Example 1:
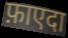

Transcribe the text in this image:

फ़ाएदा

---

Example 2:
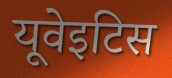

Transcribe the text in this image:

यूवेइटिस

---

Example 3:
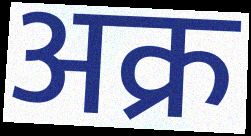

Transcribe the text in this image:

अक्र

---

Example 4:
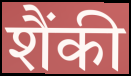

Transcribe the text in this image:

शैंकी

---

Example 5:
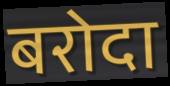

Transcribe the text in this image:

बरोदा